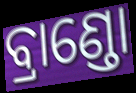
ବ୍ରାଣ୍ଡୋ